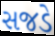
સજડે